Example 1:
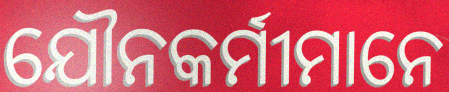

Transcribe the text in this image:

ଯୌନକର୍ମୀମାନେ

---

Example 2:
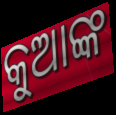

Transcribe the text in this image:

କୁଆଙ୍କ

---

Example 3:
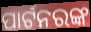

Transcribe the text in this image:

ପାର୍ଟନରଙ୍କ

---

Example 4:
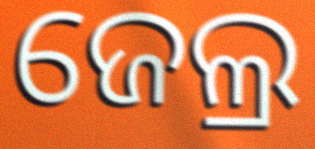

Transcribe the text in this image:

ଜେଲ୍ର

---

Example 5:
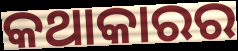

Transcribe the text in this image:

କଥାକାରର